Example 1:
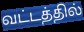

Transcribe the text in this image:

வட்டத்தில்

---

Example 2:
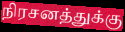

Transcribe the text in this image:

நிரசனத்துக்கு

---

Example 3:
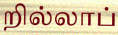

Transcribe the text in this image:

றில்லாப்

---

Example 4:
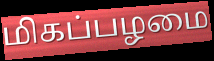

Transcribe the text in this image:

மிகப்பழமை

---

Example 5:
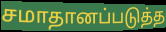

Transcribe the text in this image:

சமாதானப்படுத்த